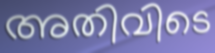
അതിവിടെ